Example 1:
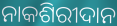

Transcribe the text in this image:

ନାକଶିରୀଦାନ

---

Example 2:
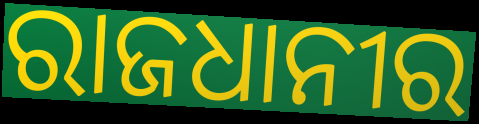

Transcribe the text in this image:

ରାଜଧାନୀର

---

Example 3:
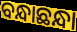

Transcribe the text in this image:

ବନ୍ଧାଛନ୍ଧା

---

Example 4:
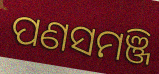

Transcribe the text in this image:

ପଣସମଞ୍ଜି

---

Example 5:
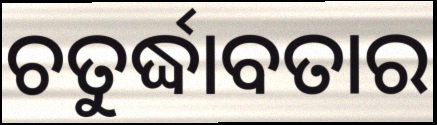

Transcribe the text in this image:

ଚତୁର୍ଦ୍ଧାବତାର